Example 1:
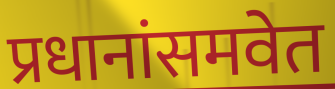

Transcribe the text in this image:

प्रधानांसमवेत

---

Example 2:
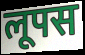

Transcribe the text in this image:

लूपस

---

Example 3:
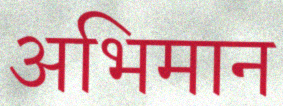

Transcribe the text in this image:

अभिमान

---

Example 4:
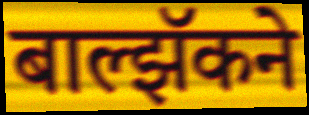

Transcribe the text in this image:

बाल्झॅकने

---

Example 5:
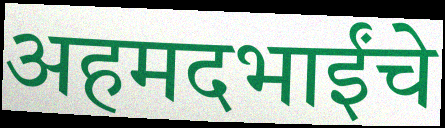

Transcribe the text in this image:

अहमदभाईंचे